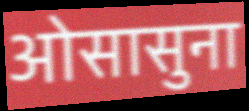
ओसासुना